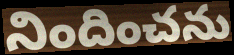
నిందించను